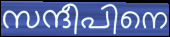
സന്ദീപിനെ